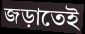
জড়াতেই